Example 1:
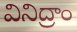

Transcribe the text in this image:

వినిద్రాం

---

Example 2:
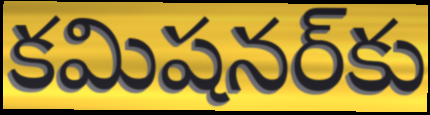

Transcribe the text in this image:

కమిషనర్‌కు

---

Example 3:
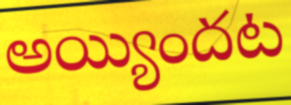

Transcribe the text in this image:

అయ్యిందట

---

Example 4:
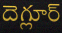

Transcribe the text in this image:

దెగ్లూర్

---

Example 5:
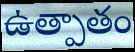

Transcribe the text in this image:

ఉత్పాతం